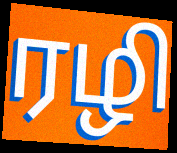
ரழி